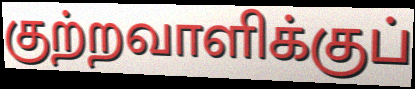
குற்றவாளிக்குப்